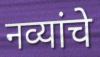
नव्यांचे